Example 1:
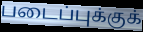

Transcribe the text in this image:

படைப்புக்குக்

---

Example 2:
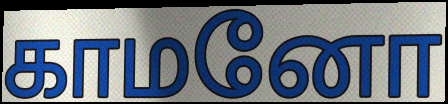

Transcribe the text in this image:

காமனோ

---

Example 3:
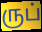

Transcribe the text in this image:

ருப்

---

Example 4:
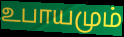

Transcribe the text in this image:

உபாயமும்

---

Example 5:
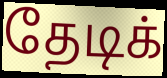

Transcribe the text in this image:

தேடிக்